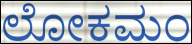
ಲೋಕಮಂ